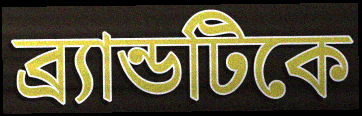
ব্র্যান্ডটিকে